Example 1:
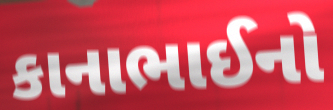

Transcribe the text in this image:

કાનાભાઈનો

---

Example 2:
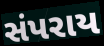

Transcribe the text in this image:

સંપરાય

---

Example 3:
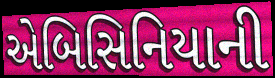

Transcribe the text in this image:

એબિસિનિયાની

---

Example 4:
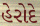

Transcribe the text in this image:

હેરોદે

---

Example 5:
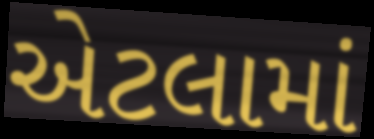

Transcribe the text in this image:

એટલામાં